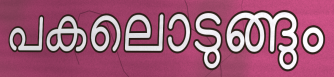
പകലൊടുങ്ങും